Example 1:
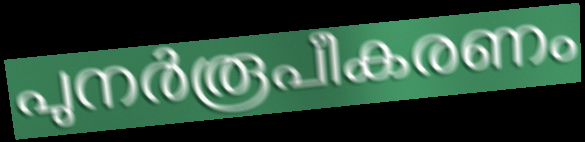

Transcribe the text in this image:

പുനർരൂപീകരണം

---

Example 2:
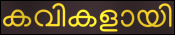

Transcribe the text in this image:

കവികളായി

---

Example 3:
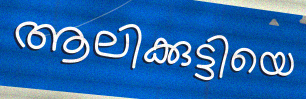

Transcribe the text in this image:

ആലിക്കുട്ടിയെ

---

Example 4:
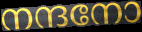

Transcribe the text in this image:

നന്ദനോ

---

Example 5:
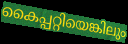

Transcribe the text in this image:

കൈപ്പറ്റിയെങ്കിലും